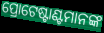
ପ୍ରୋଟେଷ୍ଟାଣ୍ଟମାନଙ୍କ